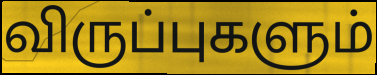
விருப்புகளும்